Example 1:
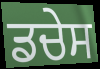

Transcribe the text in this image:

ਡਚੇਸ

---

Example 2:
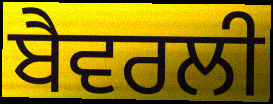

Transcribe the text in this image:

ਬੈਵਰਲੀ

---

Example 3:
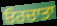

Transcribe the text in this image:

ਓਰਚਾਤਾ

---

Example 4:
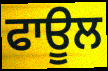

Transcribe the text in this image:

ਫਾਊਲ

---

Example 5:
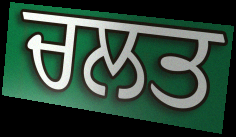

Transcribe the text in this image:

ਚਲਤ